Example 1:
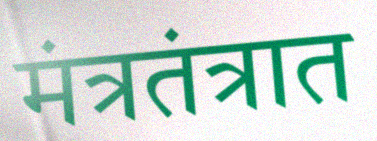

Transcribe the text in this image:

मंत्रतंत्रात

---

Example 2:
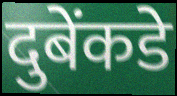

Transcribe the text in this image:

दुबेंकडे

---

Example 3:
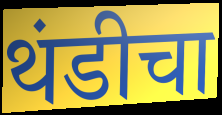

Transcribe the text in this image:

थंडीचा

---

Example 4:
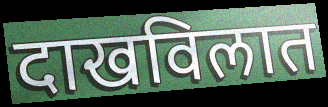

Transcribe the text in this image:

दाखविलात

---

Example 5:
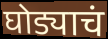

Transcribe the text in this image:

घोड्याचं